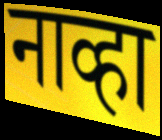
नाव्हा